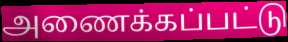
அணைக்கப்பட்டு